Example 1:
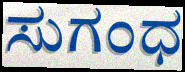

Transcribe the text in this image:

ಸುಗಂಧ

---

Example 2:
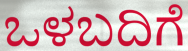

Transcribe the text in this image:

ಒಳಬದಿಗೆ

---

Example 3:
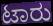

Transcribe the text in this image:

ಟಾರು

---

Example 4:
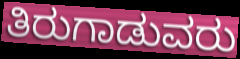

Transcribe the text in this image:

ತಿರುಗಾಡುವರು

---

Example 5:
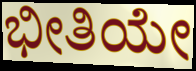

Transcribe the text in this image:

ಭೀತಿಯೇ